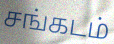
சங்கடம்